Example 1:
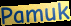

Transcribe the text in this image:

Pamuk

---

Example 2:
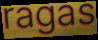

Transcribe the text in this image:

ragas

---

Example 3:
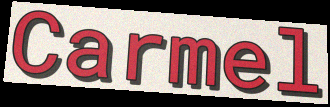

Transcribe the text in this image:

Carmel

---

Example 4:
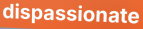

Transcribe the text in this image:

dispassionate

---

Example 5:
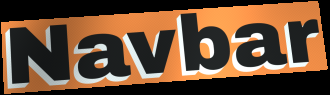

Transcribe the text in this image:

Navbar